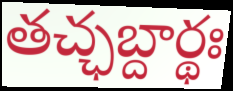
తచ్ఛబ్దార్థః